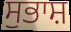
ਸੁਭਾਸ਼